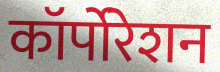
कॉर्पोरेशन